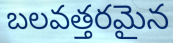
బలవత్తరమైన